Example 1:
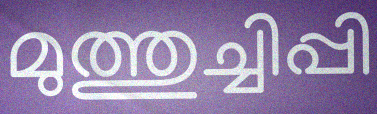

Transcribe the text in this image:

മുത്തുച്ചിപ്പി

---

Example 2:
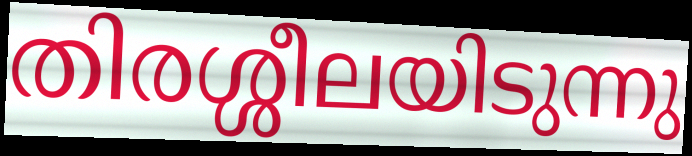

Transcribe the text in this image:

തിരശ്ശീലയിടുന്നു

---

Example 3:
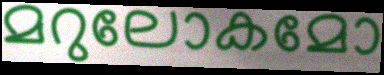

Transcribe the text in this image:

മറുലോകമോ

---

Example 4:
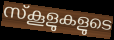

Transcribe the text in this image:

സ്‌കൂളുകളുടെ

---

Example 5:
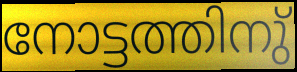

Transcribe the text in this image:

നോട്ടത്തിനു്